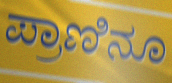
ಪ್ರಾಣಿನೂ